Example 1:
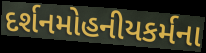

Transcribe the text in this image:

દર્શનમોહનીયકર્મના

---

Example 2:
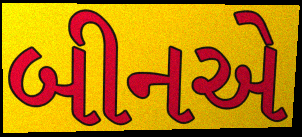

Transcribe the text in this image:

બીનએ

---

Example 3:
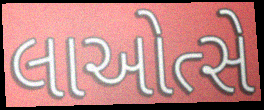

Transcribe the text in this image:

લાઓત્સે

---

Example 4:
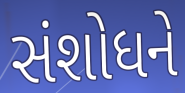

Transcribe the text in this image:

સંશોધને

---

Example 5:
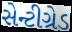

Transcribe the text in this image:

સેન્ટીગ્રેડ